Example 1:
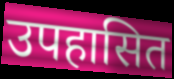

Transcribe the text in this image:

उपहासित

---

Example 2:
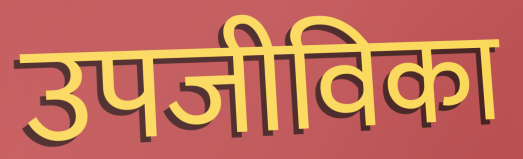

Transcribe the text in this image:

उपजीविका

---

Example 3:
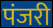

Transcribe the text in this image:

पंजरी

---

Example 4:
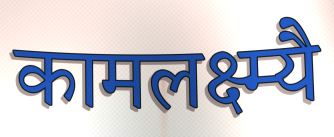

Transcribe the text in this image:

कामलक्ष्म्यै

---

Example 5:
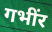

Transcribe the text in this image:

गभींर